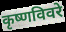
कृष्णविवरे